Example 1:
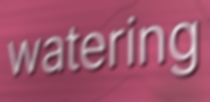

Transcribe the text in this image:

watering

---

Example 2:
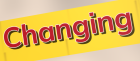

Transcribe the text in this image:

Changing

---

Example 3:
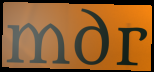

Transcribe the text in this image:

mdr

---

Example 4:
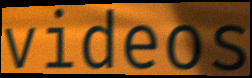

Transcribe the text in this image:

videos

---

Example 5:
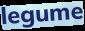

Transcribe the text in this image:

legume